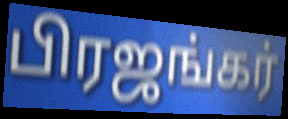
பிரஜங்கர்